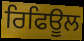
ਰਿਫਿਊਲ